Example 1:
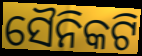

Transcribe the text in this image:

ସୈନିକଟି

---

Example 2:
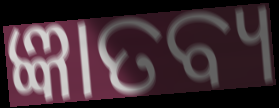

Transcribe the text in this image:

ଜ୍ଞାତବ୍ୟ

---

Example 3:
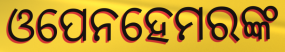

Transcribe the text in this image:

ଓପେନହେମରଙ୍କ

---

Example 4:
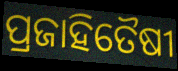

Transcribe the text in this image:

ପ୍ରଜାହିତୈଷୀ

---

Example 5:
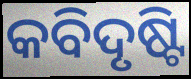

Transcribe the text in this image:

କବିଦୃଷ୍ଟି